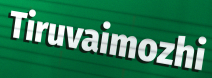
Tiruvaimozhi